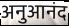
अनुआनंद